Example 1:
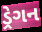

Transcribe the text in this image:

ડ્રેગન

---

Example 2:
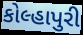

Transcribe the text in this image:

કોલ્હાપુરી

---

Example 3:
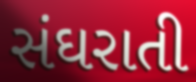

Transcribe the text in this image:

સંઘરાતી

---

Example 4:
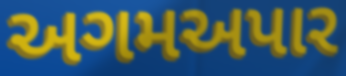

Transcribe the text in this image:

અગમઅપાર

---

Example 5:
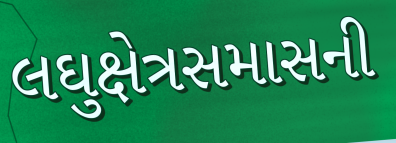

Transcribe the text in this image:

લઘુક્ષેત્રસમાસની